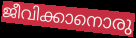
ജീവിക്കാനൊരു